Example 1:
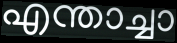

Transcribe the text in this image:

എന്താച്ചാ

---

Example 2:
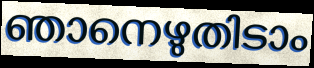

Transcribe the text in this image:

ഞാനെഴുതിടാം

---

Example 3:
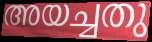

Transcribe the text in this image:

അയച്ചതു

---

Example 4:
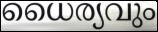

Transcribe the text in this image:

ധൈര്യവും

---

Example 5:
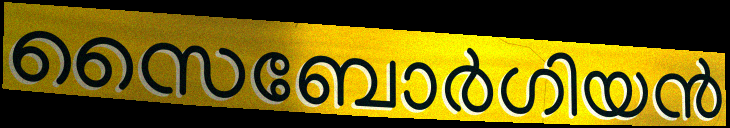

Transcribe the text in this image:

സൈബോർഗിയൻ